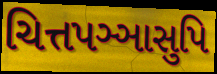
ચિત્તપઞ્ઞાસુપિ